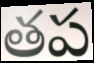
తప